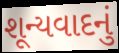
શૂન્યવાદનું